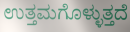
ಉತ್ತಮಗೊಳ್ಳುತ್ತದೆ